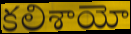
కలిశాయో